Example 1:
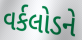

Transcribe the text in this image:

વર્કલોડને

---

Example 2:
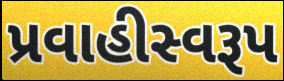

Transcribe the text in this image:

પ્રવાહીસ્વરૂપ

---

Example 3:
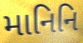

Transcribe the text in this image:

માનિનિ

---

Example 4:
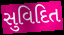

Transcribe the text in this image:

સુવિદિત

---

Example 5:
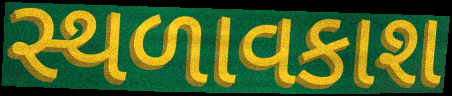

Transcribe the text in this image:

સ્થળાવકાશ